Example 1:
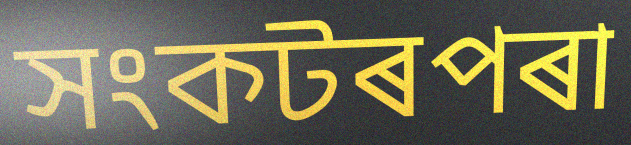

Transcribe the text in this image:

সংকটৰপৰা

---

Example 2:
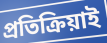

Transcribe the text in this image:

প্ৰতিক্ৰিয়াই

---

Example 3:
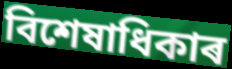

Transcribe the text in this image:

বিশেষাধিকাৰ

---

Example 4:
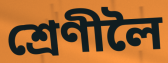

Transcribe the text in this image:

শ্ৰেণীলৈ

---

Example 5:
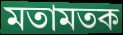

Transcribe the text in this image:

মতামতক